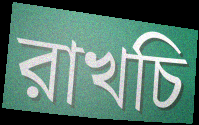
রাখচি